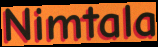
Nimtala